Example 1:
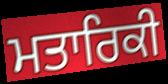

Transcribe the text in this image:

ਮਤਾਰਿਕੀ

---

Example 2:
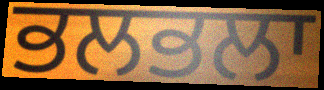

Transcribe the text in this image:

ਭਲਭਲਾ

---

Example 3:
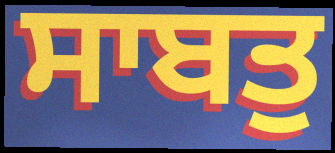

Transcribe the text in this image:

ਸਾਬਤੁ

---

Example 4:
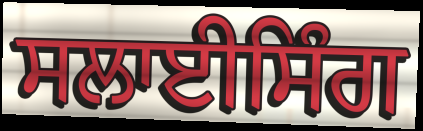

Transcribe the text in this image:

ਸਲਾਈਸਿੰਗ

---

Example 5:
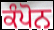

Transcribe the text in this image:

ਕੰਪੋਨ